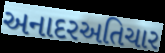
અનાદરઅતિચાર